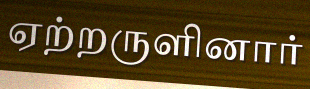
ஏற்றருளினார்